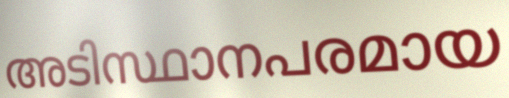
അടിസ്ഥാനപരമായ